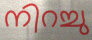
നിറച്ചു